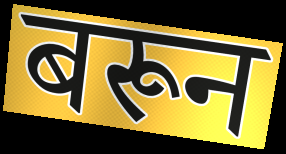
बरून